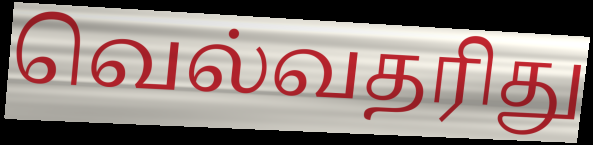
வெல்வதரிது